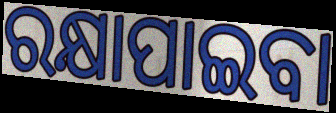
ରକ୍ଷାପାଇବା